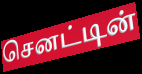
செனட்டின்